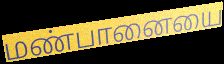
மண்பானையை